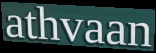
athvaan